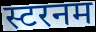
स्टरनम